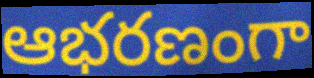
ఆభరణంగా